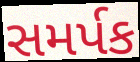
સમર્પક